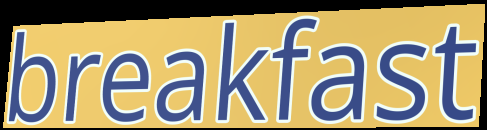
breakfast